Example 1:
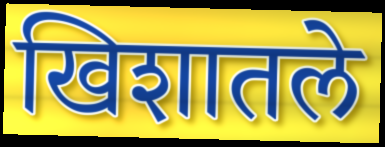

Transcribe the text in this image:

खिशातले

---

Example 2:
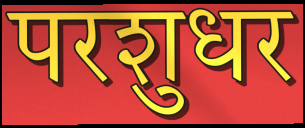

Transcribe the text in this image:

परशुधर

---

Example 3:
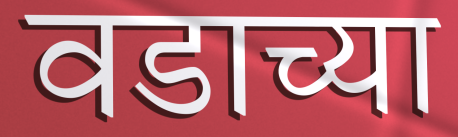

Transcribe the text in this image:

वडाच्या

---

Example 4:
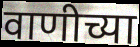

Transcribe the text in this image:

वाणीच्या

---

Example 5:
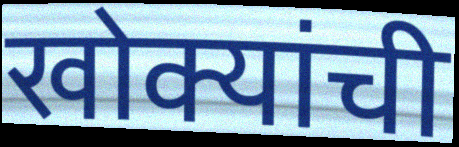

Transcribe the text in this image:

खोक्यांची